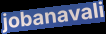
jobanavali